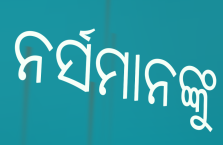
ନର୍ସମାନଙ୍କୁ